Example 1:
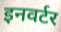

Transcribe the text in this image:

इनवर्टर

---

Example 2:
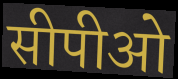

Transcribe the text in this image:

सीपीओ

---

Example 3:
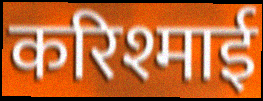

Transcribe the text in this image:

करिश्माई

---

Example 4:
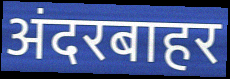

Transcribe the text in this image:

अंदरबाहर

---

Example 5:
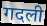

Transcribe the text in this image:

गदली